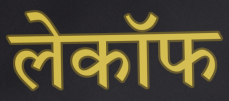
लेकॉफ